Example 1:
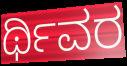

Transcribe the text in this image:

ರ್ಥಿವರ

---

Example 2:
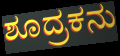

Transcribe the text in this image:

ಶೂದ್ರಕನು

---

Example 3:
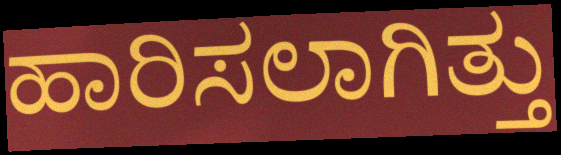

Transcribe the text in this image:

ಹಾರಿಸಲಾಗಿತ್ತು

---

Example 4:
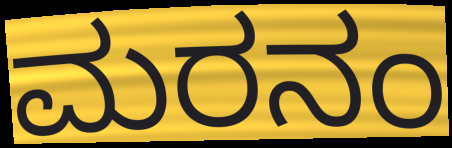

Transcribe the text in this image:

ಮರನಂ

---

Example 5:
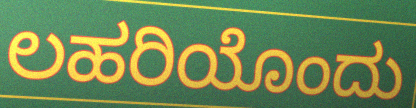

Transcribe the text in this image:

ಲಹರಿಯೊಂದು